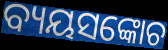
ବ୍ୟୟସଙ୍କୋଚ